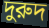
দুরুদ